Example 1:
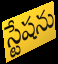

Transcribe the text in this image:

స్టేషను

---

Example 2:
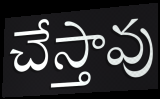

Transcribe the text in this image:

చేస్తావు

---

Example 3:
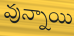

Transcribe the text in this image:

వున్నాయి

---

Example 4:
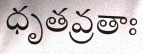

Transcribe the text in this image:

ధృతవ్రతాః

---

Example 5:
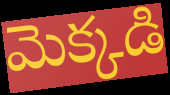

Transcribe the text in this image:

మెక్కడి